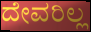
ದೇವರಿಲ್ಲ